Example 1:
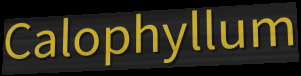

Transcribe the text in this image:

Calophyllum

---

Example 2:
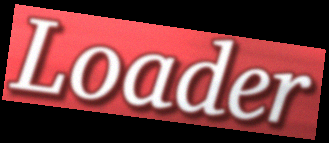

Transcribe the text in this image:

Loader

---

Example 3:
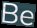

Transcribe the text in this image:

Be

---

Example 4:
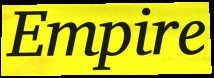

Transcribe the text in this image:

Empire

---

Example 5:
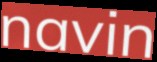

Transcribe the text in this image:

navin